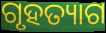
ଗୃହତ୍ୟାଗ